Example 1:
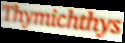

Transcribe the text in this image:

Thymichthys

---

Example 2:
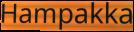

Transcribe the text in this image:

Hampakka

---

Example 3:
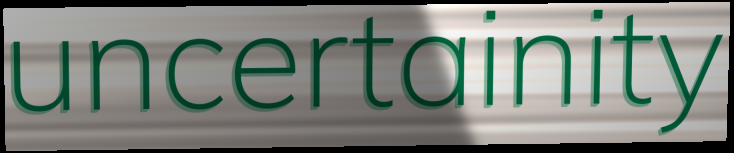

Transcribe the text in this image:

uncertainity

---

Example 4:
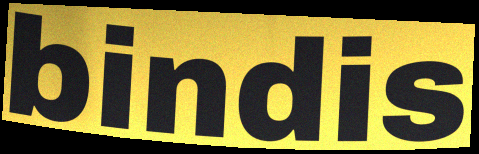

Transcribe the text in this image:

bindis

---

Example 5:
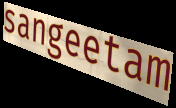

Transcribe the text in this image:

sangeetam